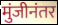
मुंजीनंतर